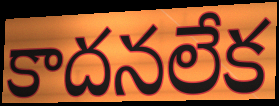
కాదనలేక